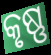
କୃଷ୍ଣ